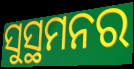
ସୁସ୍ଥମନର